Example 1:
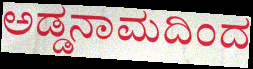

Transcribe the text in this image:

ಅಡ್ಡನಾಮದಿಂದ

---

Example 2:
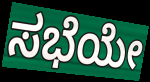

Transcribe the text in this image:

ಸಭೆಯೇ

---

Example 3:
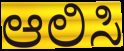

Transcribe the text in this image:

ಆಲಿಸಿ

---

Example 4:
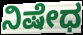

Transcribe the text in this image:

ನಿಷೇಧ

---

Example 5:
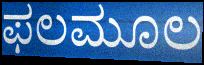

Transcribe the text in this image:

ಫಲಮೂಲ